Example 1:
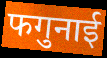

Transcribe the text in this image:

फगुनाई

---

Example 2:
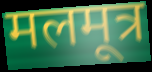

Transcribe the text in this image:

मलमूत्र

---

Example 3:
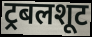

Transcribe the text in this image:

ट्रबलशूट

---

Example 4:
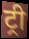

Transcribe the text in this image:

ट्री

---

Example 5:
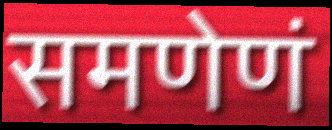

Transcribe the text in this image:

समणेणं